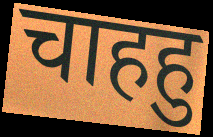
चाहहु